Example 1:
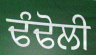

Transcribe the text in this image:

ਢੰਢੋਲੀ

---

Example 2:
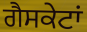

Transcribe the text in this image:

ਗੈਸਕੇਟਾਂ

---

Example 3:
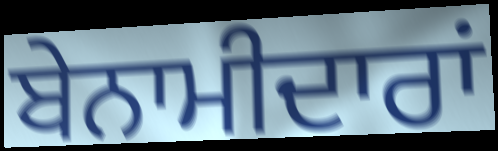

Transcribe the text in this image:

ਬੇਨਾਮੀਦਾਰਾਂ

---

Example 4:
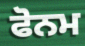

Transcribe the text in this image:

ਫੋਨਮ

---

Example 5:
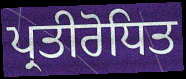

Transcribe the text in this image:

ਪ੍ਰਤੀਰੋਧਿਤ